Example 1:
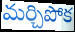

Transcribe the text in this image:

మర్చిపోక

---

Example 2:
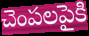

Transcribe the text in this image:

చెంపలపైకి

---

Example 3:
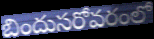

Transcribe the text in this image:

బిందుసరోవరంలో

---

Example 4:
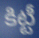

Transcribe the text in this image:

కిట్టీ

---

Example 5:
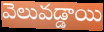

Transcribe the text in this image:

వెలువడ్డాయి